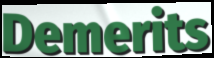
Demerits